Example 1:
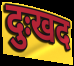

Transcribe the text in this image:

दुःखद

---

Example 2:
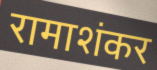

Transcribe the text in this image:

रामाशंकर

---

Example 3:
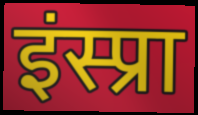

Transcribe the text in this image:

इंस्प्रा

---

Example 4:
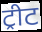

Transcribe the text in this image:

ट्रीट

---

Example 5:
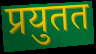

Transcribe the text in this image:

प्रयुतत